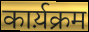
कार्य़क्रम